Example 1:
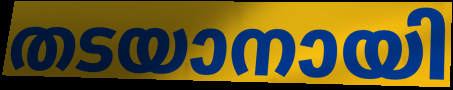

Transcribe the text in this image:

തടയാനായി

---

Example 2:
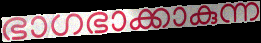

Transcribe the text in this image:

ഭാഗഭാക്കാകുന്ന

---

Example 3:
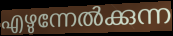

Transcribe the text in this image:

എഴുന്നേൽക്കുന്ന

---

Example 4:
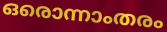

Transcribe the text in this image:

ഒരൊന്നാംതരം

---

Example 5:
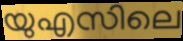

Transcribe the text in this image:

യുഎസിലെ